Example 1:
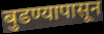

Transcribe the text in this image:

बुडण्यापासून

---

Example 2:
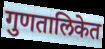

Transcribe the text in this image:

गुणतालिकेत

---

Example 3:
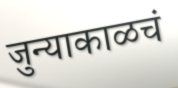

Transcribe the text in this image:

जुन्याकाळचं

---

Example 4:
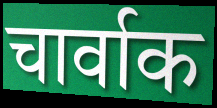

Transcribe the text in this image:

चार्वाक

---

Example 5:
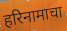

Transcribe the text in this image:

हरिनामाचा